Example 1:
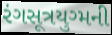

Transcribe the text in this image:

રંગસૂત્રયુગ્મની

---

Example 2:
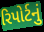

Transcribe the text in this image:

રિપોર્ટનું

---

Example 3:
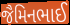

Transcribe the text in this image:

જૈમિનભાઈ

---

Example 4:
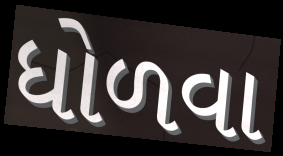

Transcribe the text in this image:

ધોળવા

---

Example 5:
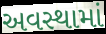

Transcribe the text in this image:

અવસ્થામાં